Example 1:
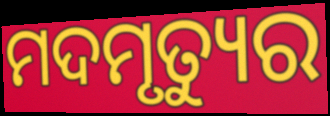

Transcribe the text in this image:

ମଦମୃତ୍ୟୁର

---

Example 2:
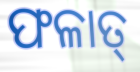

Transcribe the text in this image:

ଫଳାତ୍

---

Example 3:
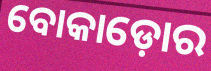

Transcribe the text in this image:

ବୋକାଡ଼ୋର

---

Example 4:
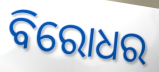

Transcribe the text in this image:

ବିରୋଧର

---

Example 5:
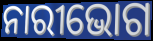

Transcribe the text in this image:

ନାରୀଭୋଗ